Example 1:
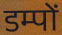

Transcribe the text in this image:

डम्पों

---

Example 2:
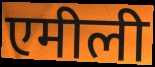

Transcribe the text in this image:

एमीली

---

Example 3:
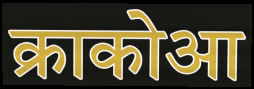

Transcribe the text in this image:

क्राकोआ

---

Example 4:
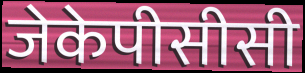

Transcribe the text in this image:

जेकेपीसीसी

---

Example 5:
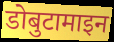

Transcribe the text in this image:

डोबुटामाइन